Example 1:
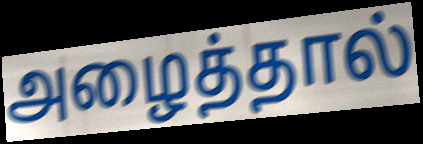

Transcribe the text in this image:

அழைத்தால்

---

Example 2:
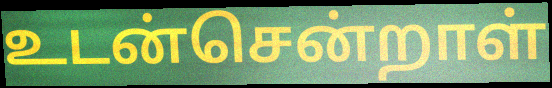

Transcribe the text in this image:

உடன்சென்றாள்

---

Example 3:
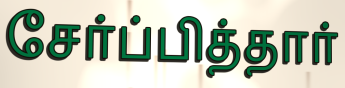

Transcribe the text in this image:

சேர்ப்பித்தார்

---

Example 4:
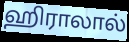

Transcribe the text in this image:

ஹிராலால்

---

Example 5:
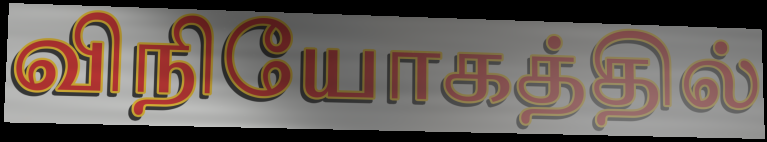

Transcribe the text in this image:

விநியோகத்தில்